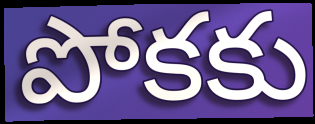
పోకకు